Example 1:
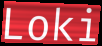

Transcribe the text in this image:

Loki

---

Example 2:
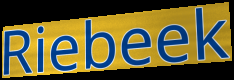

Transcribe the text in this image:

Riebeek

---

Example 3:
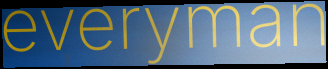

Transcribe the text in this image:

everyman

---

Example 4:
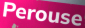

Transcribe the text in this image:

Perouse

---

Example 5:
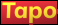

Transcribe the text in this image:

Tapo